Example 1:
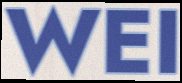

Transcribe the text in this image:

WEI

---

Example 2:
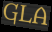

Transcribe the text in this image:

GLA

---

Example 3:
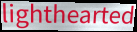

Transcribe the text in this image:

lighthearted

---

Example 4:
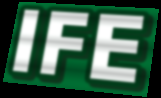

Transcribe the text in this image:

IFE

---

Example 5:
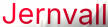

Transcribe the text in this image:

Jernvall